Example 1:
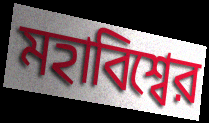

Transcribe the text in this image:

মহাবিশ্বের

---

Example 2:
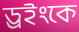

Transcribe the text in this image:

ড্রইংকে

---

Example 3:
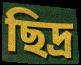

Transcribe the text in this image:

ছিদ্র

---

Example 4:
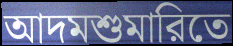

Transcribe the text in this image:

আদমশুমারিতে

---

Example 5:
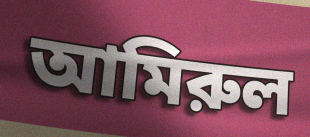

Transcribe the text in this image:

আমিরুল